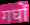
गधों